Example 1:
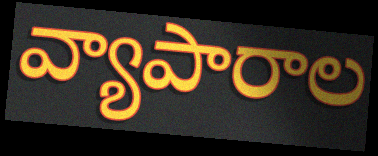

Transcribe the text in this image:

వ్యాపారాల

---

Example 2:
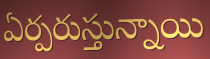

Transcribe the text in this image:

ఏర్పరుస్తున్నాయి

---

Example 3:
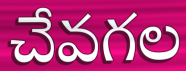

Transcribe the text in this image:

చేవగల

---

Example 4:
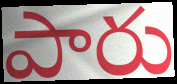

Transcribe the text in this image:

పారు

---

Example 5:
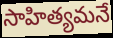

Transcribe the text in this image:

సాహిత్యమనే